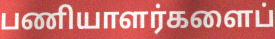
பணியாளர்களைப்